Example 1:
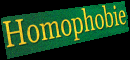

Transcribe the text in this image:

Homophobie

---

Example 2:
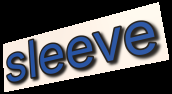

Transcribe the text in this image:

sleeve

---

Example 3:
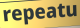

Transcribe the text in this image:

repeatu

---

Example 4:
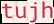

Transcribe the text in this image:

tujh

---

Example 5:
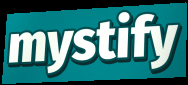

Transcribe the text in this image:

mystify